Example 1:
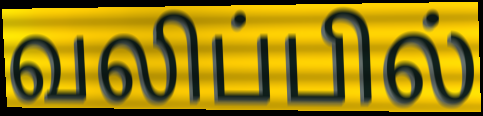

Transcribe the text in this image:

வலிப்பில்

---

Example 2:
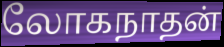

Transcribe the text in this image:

லோகநாதன்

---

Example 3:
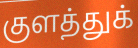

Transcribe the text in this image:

குளத்துக்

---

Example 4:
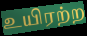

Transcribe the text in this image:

உயிரற்ற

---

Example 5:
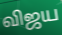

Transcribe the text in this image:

விஜய